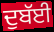
ਦੁਬੱਈ